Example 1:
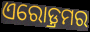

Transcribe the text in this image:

ଏରୋଡ଼୍ରମର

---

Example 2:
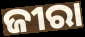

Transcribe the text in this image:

ଜୀରା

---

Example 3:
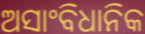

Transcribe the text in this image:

ଅସାଂବିଧାନିକ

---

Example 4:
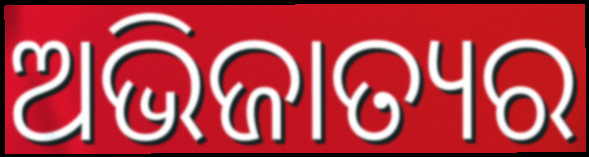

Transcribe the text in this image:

ଅଭିଜାତ୍ୟର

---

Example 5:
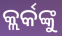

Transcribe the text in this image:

କ୍ଲର୍କଙ୍କୁ